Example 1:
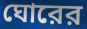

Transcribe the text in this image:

ঘোরের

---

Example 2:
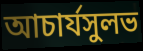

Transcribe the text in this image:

আচার্যসুলভ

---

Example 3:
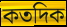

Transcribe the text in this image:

কতদিক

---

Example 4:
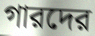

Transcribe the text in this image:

গারদের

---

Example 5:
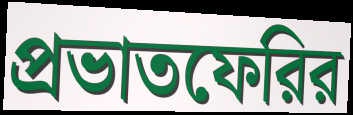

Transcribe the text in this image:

প্রভাতফেরির